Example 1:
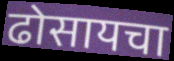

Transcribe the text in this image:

ढोसायचा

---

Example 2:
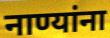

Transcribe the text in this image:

नाण्यांना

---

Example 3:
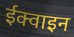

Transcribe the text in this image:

ईक्वाइन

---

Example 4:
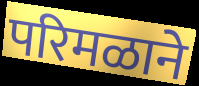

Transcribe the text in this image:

परिमळाने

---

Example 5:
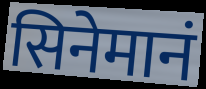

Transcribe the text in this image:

सिनेमानं